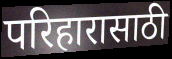
परिहारासाठी